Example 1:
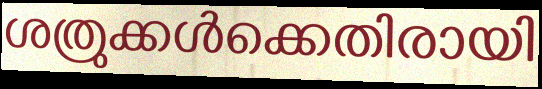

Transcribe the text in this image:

ശത്രുക്കൾക്കെതിരായി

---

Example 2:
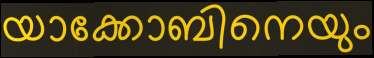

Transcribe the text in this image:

യാക്കോബിനെയും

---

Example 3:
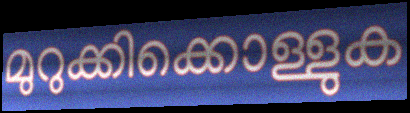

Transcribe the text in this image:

മുറുക്കിക്കൊള്ളുക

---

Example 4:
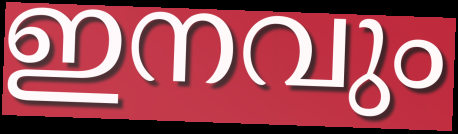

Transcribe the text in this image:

ഇനവും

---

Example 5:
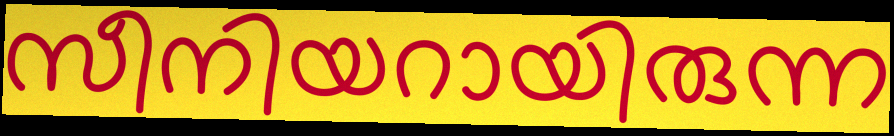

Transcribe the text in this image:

സീനിയറായിരുന്ന